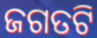
ଜଗତଟି